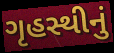
ગૃહસ્થીનું